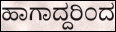
ಹಾಗಾದ್ದರಿಂದ